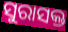
ସୁରାସକ୍ତ